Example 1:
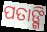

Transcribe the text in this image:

ପତାଙ୍ଗି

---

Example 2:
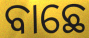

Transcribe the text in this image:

ବାଛେ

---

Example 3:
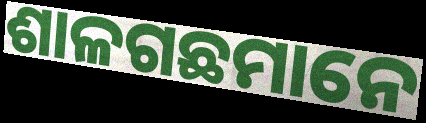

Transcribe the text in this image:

ଶାଳଗଛମାନେ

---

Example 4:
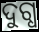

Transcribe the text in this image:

ଦୁଗ୍ଧ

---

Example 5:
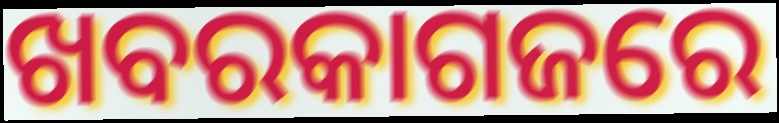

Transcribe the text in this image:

ଖବରକାଗଜରେ